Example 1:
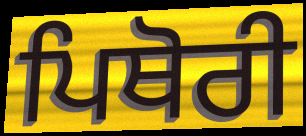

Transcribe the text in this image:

ਪਿਥੋਰੀ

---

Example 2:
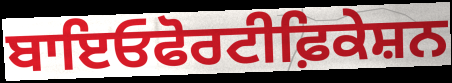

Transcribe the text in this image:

ਬਾਇਓਫੋਰਟੀਫ਼ਿਕੇਸ਼ਨ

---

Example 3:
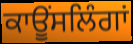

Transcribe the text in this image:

ਕਾਊਂਸਲਿੰਗਾਂ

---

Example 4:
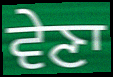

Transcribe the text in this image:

ਵੇਣਾ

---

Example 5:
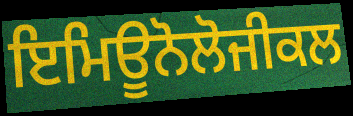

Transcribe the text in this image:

ਇਮਿਊਨੋਲੋਜੀਕਲ